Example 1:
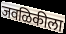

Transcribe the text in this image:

जवळिकीला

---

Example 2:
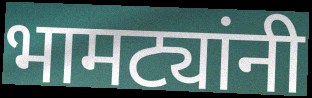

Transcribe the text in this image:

भामट्यांनी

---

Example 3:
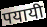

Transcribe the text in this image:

पयायी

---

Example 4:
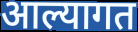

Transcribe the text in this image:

आल्यागत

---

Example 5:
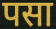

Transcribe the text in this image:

पसा